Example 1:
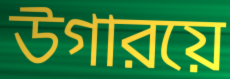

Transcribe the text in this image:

উগারয়ে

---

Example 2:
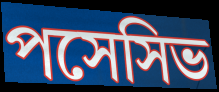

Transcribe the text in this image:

পসেসিভ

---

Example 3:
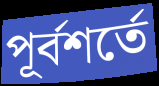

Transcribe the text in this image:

পূর্বশর্তে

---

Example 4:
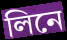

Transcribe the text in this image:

লিনে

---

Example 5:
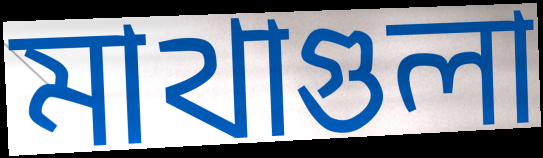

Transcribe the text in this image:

মাথাগুলা